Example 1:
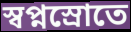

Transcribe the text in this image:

স্বপ্নস্রোতে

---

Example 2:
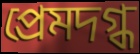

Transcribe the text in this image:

প্রেমদগ্ধ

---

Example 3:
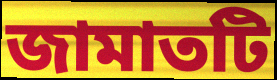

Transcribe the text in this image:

জামাতটি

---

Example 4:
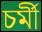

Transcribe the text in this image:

চর্মী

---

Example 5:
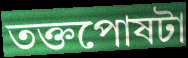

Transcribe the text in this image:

তক্তপোষটা